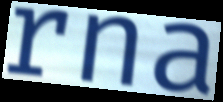
rna